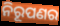
ନିରୂପଣର